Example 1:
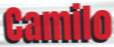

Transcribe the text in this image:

Camilo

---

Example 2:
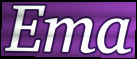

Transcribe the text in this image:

Ema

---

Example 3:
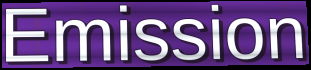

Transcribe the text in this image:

Emission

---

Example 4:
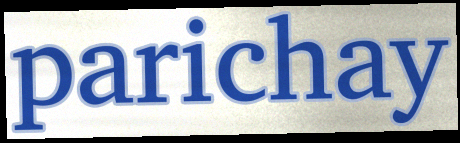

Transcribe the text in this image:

parichay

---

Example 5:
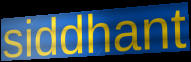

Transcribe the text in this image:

siddhant